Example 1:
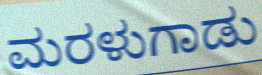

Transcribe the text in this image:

ಮರಳುಗಾಡು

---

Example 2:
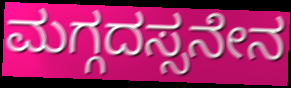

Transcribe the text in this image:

ಮಗ್ಗದಸ್ಸನೇನ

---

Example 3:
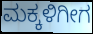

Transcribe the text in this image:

ಮಕ್ಕಳಿಗೀಗ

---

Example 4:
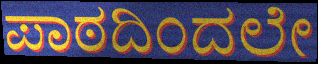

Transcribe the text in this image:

ಪಾಠದಿಂದಲೇ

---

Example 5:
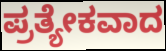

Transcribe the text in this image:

ಪ್ರತ್ಯೇಕವಾದ